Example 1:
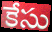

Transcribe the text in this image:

కేసు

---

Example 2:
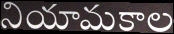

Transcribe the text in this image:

నియామకాల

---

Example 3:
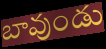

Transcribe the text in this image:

బావుండు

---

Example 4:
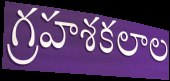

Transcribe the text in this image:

గ్రహశకలాల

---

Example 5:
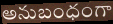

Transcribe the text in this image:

అనుబంధంగా